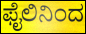
ಫೈಲಿನಿಂದ